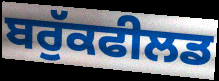
ਬਰੁੱਕਫੀਲਡ